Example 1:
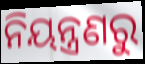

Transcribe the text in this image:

ନିୟନ୍ତ୍ରଣରୁ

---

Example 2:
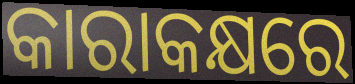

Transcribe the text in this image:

କାରାକକ୍ଷରେ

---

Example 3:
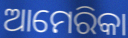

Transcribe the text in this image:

ଆମେରିକା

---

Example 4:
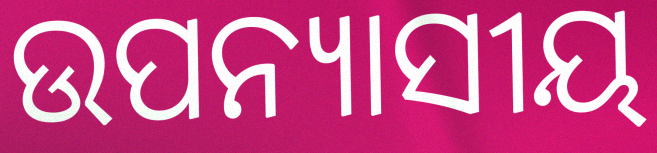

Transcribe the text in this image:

ଉପନ୍ୟାସୀୟ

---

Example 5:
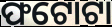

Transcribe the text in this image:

ଫଟୋଟା